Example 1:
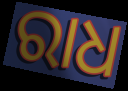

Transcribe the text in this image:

ରାଧ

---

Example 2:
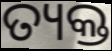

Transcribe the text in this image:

ତ୍ୟକ୍ତ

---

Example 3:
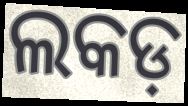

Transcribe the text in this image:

ଲକଡ଼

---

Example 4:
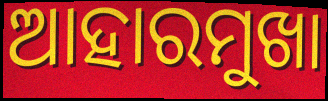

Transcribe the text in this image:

ଆହାରମୁଖା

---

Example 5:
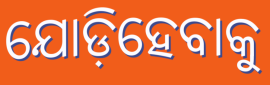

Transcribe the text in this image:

ଯୋଡ଼ିହେବାକୁ